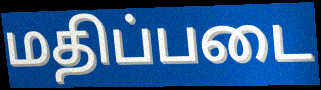
மதிப்படை